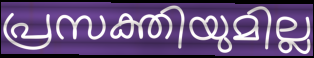
പ്രസക്തിയുമില്ല